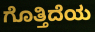
ಗೊತ್ತಿದೆಯ